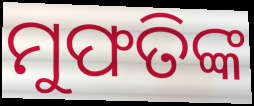
ମୁଫତିଙ୍କ